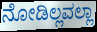
ನೋಡಿಲ್ಲವಲ್ಲಾ